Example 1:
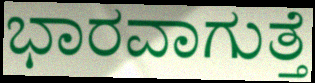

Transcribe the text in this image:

ಭಾರವಾಗುತ್ತೆ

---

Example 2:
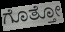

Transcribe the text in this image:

ಗೊತ್ತೋ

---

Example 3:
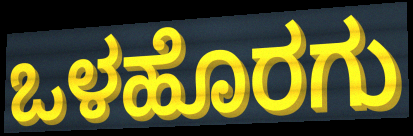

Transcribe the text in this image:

ಒಳಹೊರಗು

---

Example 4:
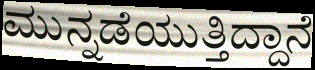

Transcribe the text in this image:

ಮುನ್ನಡೆಯುತ್ತಿದ್ದಾನೆ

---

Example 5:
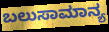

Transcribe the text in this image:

ಬಲುಸಾಮಾನ್ಯ